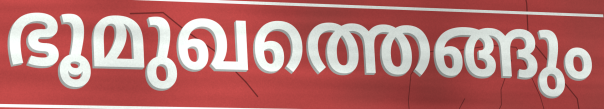
ഭൂമുഖത്തെങ്ങും